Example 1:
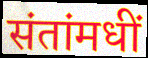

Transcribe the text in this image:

संतांमधीं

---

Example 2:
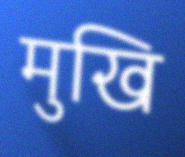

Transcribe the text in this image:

मुखि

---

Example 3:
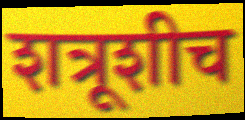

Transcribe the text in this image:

शत्रूशीच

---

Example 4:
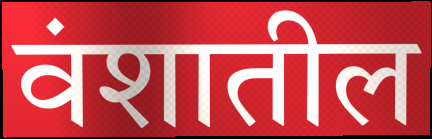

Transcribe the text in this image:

वंशातील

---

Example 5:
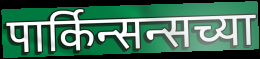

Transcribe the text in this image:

पार्किन्सन्सच्या